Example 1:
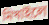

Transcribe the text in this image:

মিখাইলে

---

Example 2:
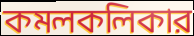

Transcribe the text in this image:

কমলকলিকার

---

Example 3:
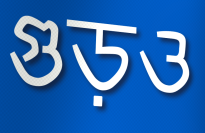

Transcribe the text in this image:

গুড়ও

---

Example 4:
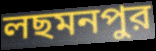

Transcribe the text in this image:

লছমনপুর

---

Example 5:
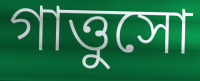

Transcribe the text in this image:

গাত্তুসো